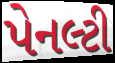
પેનલ્ટી